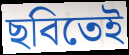
ছবিতেই